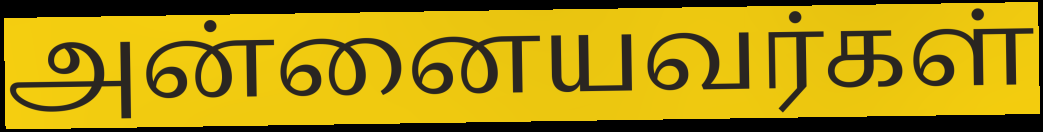
அன்னையவர்கள்